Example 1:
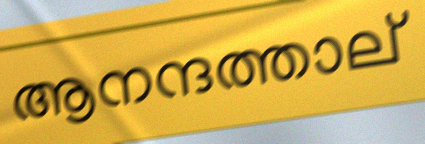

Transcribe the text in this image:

ആനന്ദത്താല്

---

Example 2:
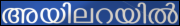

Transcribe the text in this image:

അയിലറയിൽ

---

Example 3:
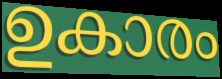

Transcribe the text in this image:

ഉകാരം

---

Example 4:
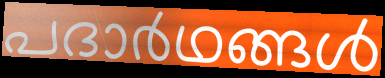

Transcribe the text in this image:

പദാർഥങ്ങൾ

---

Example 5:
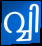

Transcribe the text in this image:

വ്വി